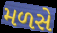
મળસે